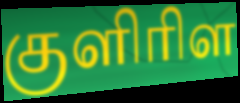
குளிரிள